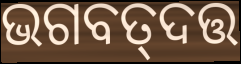
ଭଗବତ୍‌ଦତ୍ତ